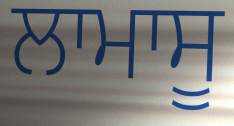
ਲਾਮਾਸੂ